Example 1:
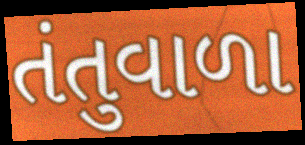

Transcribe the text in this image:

તંતુવાળા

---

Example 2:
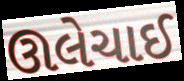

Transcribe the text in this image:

ઊલેચાઈ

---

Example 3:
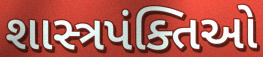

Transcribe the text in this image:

શાસ્ત્રપંક્તિઓ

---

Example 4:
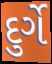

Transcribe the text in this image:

દુર્ગે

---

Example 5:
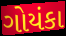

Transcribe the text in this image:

ગોયંકા